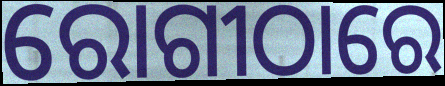
ରୋଗୀଠାରେ